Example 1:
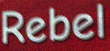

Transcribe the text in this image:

Rebel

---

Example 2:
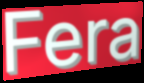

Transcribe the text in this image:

Fera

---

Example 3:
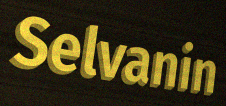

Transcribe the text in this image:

Selvanin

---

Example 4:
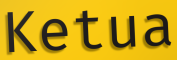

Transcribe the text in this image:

Ketua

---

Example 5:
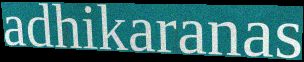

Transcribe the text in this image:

adhikaranas